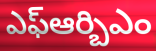
ఎఫ్ఆర్బిఎం